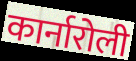
कार्नारोली